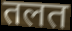
तलत